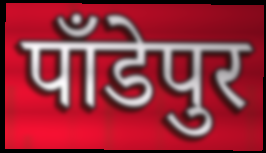
पाँडेपुर